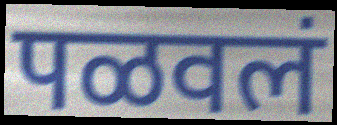
पळवलं